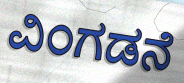
ವಿಂಗಡನೆ